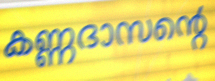
കണ്ണദാസന്റെ